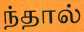
ந்தால்